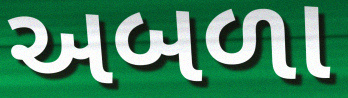
અબળા